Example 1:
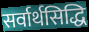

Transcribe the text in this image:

सर्वार्थसिद्धि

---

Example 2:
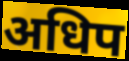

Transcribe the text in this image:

अधिप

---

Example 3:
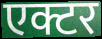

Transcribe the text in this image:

एक्टर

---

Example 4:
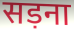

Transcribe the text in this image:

सड़ना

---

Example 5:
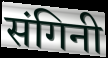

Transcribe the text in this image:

संगिनी